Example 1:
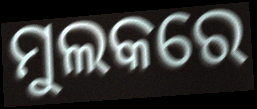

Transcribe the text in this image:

ମୁଲକରେ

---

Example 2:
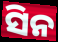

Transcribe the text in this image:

ସିନ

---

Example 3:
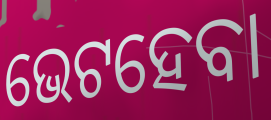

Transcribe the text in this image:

ଭେଟହେବା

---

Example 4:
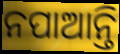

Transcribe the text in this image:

ନପାଆନ୍ତି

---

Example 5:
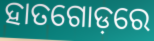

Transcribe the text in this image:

ହାତଗୋଡ଼ରେ